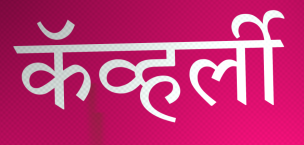
कॅव्हर्ली